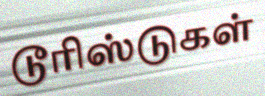
டூரிஸ்டுகள்